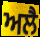
ਅਲੈ